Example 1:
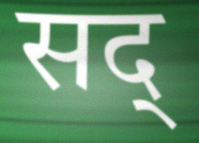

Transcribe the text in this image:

सद्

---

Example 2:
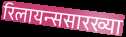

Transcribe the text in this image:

रिलायन्ससारख्या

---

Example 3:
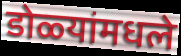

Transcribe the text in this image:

डोळ्यांमधले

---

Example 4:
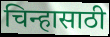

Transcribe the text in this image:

चिन्हासाठी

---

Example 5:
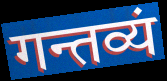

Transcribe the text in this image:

गन्तव्यं